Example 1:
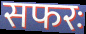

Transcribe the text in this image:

सफरः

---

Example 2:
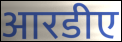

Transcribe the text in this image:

आरडीए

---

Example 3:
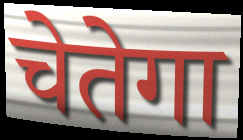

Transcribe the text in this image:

चेतेगा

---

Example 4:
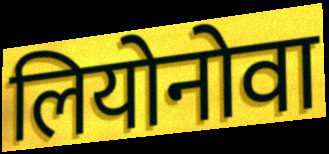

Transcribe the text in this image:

लियोनोवा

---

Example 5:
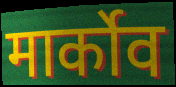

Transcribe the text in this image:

मार्कोव